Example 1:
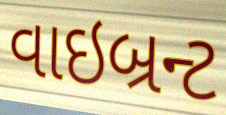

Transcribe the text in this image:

વાઇબ્રન્ટ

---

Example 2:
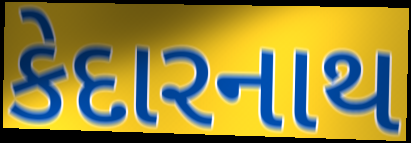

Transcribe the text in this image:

કેદારનાથ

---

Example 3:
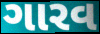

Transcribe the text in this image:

ગારવ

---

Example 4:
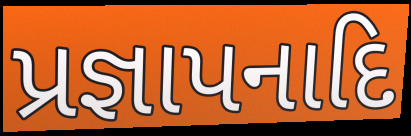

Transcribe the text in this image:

પ્રજ્ઞાપનાદિ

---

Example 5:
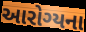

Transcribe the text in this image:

આરોગ્યના